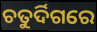
ଚତୁର୍ଦିଗରେ